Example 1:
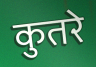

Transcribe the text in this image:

कुतरे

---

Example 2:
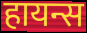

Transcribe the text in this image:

हायन्स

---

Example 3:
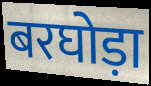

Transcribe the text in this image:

बरघोड़ा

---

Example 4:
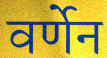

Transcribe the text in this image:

वर्णेन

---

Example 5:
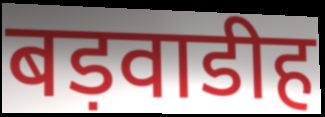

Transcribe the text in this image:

बड़वाडीह